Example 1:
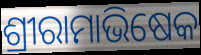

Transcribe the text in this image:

ଶ୍ରୀରାମାଭିଷେକ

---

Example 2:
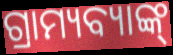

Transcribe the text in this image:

ଗ୍ରାମ୍ୟବ୍ୟାଙ୍କ୍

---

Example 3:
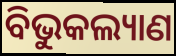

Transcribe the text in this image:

ବିଭୁକଲ୍ୟାଣ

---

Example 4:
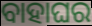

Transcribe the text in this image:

ବାହାଘର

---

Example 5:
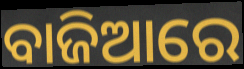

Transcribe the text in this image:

ବାଜିଆରେ